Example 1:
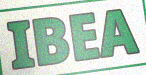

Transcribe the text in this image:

IBEA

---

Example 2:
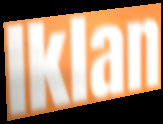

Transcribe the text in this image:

Iklan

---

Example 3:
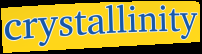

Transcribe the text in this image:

crystallinity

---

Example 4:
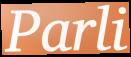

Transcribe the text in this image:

Parli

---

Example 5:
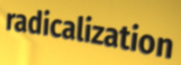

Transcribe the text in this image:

radicalization